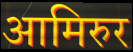
आमिरुर